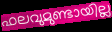
ഫലവുമുണ്ടായില്ല